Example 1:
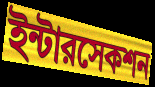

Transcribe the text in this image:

ইন্টারসেকশন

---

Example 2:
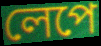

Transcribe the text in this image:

লেপে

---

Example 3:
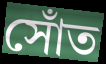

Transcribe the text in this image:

সোঁত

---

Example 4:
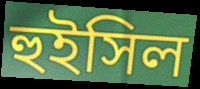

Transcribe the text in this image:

হুইসিল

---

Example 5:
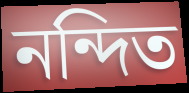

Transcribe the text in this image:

নন্দিত